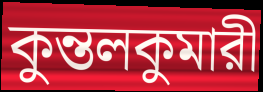
কুন্তলকুমারী